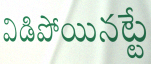
విడిపోయినట్టే